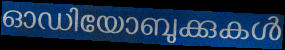
ഓഡിയോബുക്കുകൾ